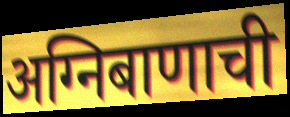
अग्निबाणाची